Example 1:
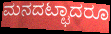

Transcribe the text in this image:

ಮನದಟ್ಟಾದರೂ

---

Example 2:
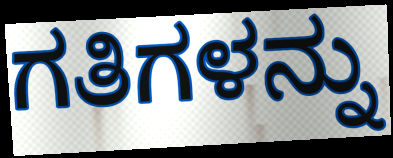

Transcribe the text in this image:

ಗತಿಗಳನ್ನು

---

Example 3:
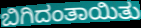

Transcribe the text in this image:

ಬಿಗಿದಂತಾಯಿತು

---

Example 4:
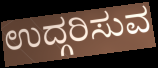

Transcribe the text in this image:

ಉದ್ಗರಿಸುವ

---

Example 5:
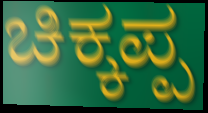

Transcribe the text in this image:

ಚಿಕ್ಕಪ್ಪ